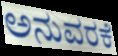
ಅನುವರಕೆ